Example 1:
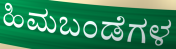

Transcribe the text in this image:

ಹಿಮಬಂಡೆಗಳ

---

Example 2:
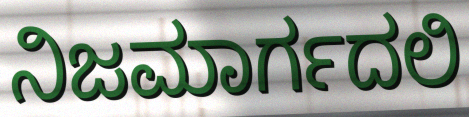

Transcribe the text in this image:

ನಿಜಮಾರ್ಗದಲಿ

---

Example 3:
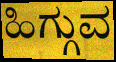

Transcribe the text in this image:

ಹಿಗ್ಗುವ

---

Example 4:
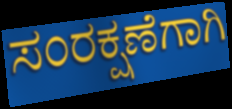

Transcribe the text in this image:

ಸಂರಕ್ಷಣೆಗಾಗಿ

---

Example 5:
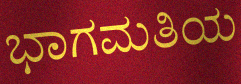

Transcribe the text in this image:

ಭಾಗಮತಿಯ